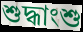
শুদ্ধাংশু